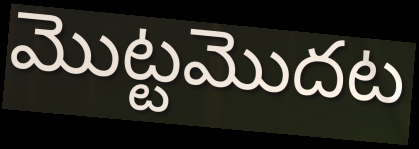
మొట్టమొదట